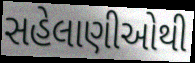
સહેલાણીઓથી